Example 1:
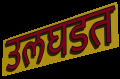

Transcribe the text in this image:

उलघडत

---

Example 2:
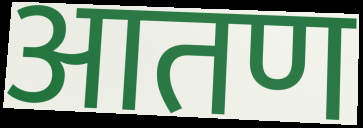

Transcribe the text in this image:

आतण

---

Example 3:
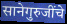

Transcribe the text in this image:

सानेगुरुजींचे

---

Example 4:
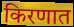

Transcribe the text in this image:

किरणात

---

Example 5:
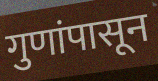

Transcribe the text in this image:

गुणांपासून